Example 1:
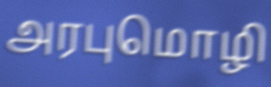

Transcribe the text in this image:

அரபுமொழி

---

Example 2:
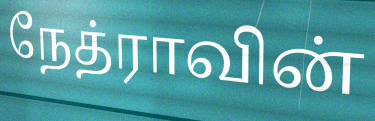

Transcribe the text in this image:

நேத்ராவின்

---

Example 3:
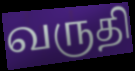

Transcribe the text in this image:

வருதி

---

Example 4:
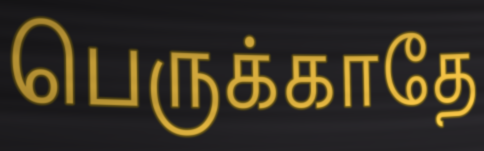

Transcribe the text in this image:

பெருக்காதே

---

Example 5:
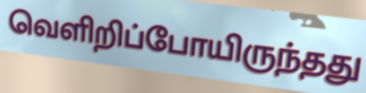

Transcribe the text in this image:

வெளிறிப்போயிருந்தது